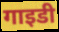
गाइडी